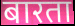
बारता